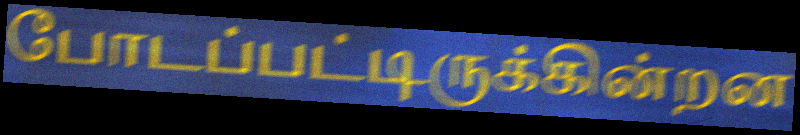
போடப்பட்டிருக்கின்றன